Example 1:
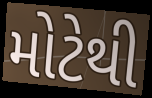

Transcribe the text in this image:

મોટેથી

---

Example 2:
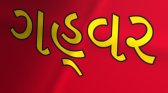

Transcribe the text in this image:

ગહ્‌વર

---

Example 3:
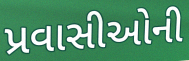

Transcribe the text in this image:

પ્રવાસીઓની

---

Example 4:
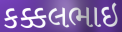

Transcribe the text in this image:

કક્કલભાઇ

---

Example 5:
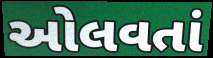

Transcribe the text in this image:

ઓલવતાં